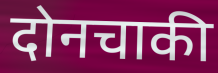
दोनचाकी